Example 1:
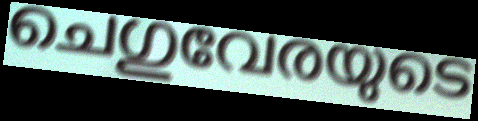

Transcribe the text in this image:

ചെഗുവേരയുടെ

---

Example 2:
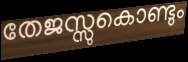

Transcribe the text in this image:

തേജസ്സുകൊണ്ടും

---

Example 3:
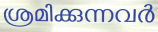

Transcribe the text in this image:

ശ്രമിക്കുന്നവർ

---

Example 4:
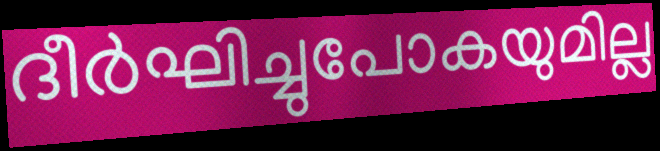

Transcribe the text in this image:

ദീർഘിച്ചുപോകയുമില്ല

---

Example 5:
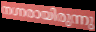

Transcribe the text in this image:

നഗ്നരായിരുന്നു